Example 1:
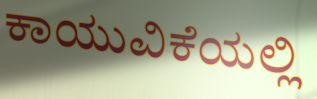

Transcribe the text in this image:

ಕಾಯುವಿಕೆಯಲ್ಲಿ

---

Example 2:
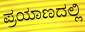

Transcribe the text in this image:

ಪ್ರಯಾಣದಲ್ಲಿ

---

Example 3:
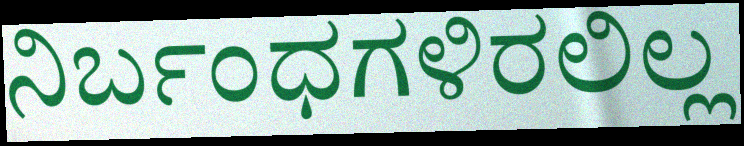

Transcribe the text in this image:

ನಿರ್ಬಂಧಗಳಿರಲಿಲ್ಲ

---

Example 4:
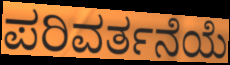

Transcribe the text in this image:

ಪರಿವರ್ತನೆಯೆ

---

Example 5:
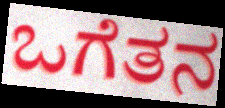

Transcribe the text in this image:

ಒಗೆತನ